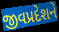
જીવપ્રદેશને